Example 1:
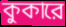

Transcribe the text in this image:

কুকারে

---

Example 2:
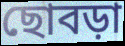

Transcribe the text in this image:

ছোবড়া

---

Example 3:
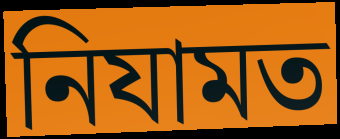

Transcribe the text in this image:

নিযামত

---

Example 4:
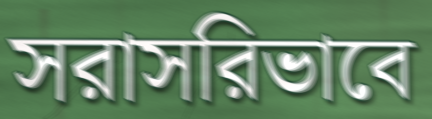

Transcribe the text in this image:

সরাসরিভাবে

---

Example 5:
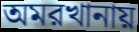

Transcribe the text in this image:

অমরখানায়